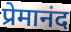
प्रेमानंद